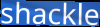
shackle